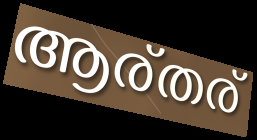
ആര്തര്